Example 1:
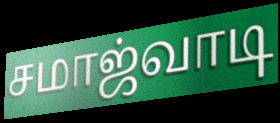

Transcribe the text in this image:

சமாஜ்வாடி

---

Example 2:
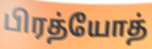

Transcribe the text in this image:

பிரத்யோத்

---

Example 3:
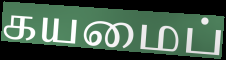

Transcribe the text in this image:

கயமைப்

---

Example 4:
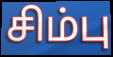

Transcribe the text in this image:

சிம்பு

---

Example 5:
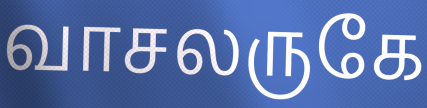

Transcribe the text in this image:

வாசலருகே